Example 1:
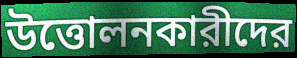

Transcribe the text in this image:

উত্তোলনকারীদের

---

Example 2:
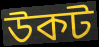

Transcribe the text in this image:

উকট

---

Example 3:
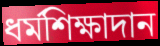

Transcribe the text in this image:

ধর্মশিক্ষাদান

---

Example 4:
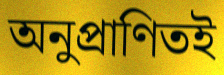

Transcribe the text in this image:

অনুপ্রাণিতই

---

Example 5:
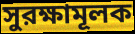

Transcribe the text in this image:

সুরক্ষামূলক